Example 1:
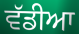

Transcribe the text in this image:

ਵੱਡੀਆ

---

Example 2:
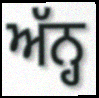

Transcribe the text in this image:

ਅੱਨ੍ਹ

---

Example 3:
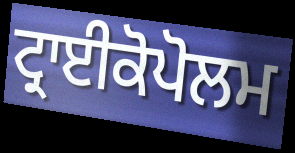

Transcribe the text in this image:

ਟ੍ਰਾਈਕੋਪੋਲਮ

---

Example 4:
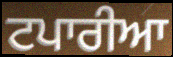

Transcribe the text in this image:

ਟਪਾਰੀਆ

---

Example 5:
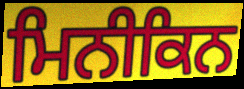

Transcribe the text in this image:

ਮਿਨੀਕਿਨ